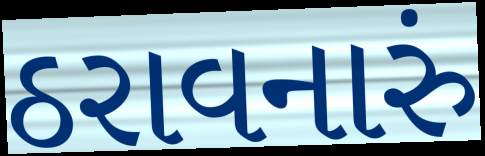
ઠરાવનારું